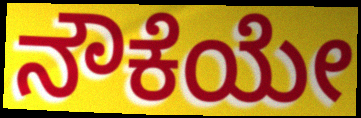
ನೌಕೆಯೇ